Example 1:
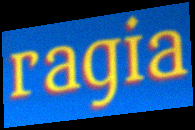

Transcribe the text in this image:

ragia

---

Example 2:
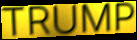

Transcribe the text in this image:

TRUMP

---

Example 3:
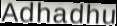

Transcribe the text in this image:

Adhadhu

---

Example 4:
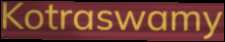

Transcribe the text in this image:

Kotraswamy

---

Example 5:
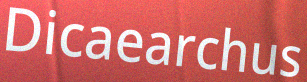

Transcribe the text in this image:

Dicaearchus